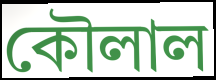
কৌলাল